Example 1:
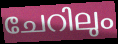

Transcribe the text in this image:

ചേറിലും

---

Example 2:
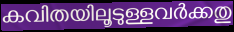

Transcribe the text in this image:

കവിതയിലൂടുള്ളവർക്കതു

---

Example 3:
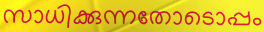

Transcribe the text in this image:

സാധിക്കുന്നതോടൊപ്പം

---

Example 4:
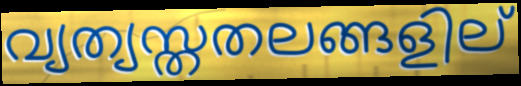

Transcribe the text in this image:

വ്യത്യസ്തതലങ്ങളില്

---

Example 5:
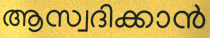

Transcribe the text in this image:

ആസ്വദിക്കാൻ